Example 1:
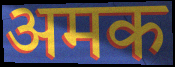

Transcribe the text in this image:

अमक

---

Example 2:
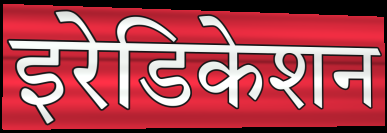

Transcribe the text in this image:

इरेडिकेशन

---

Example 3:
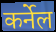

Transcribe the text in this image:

कर्नेल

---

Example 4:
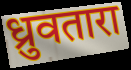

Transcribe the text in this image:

ध्रुवतारा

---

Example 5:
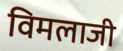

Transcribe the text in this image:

विमलाजी